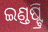
ଇଣ୍ଡଷ୍ଟ୍ରି